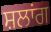
ਸ਼ਲਾਂਗ